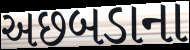
અછબડાના